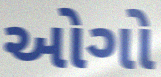
ઓગો